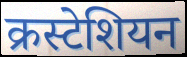
क्रस्टेशियन